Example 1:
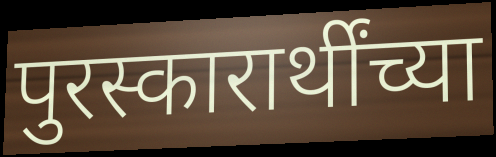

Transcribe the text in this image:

पुरस्कारार्थींच्या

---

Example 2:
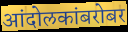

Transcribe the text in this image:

आंदोलकांबरोबर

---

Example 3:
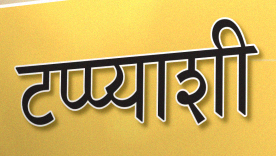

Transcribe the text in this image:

टप्प्याशी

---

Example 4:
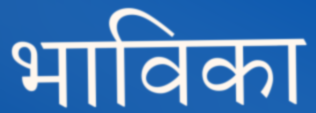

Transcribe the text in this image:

भाविका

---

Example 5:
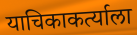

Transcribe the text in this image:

याचिकाकर्त्याला